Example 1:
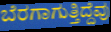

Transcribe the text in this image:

ಬೆರಗಾಗುತ್ತಿದ್ದೆವು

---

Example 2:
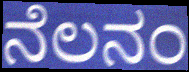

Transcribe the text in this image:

ನೆಲನಂ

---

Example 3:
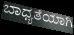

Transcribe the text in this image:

ಬಾಧ್ಯತೆಯಾಗಿ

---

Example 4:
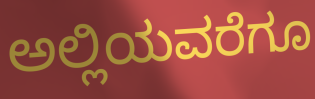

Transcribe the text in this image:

ಅಲ್ಲಿಯವರೆಗೂ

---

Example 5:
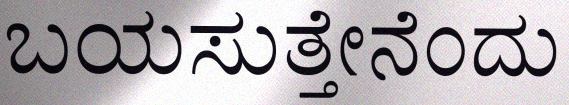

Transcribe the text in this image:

ಬಯಸುತ್ತೇನೆಂದು